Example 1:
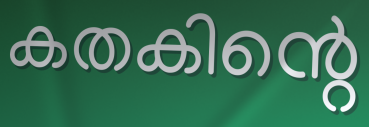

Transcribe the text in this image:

കതകിന്റെ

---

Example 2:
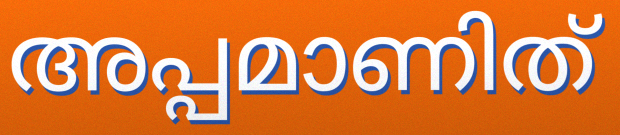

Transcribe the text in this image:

അപ്പമാണിത്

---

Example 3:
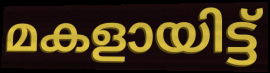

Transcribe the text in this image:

മകളായിട്ട്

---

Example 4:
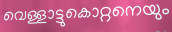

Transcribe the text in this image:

വെള്ളാട്ടുകൊറ്റനെയും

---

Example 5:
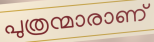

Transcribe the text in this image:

പുത്രന്മാരാണ്